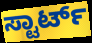
ಸ್ಟಾರ್ಟ್